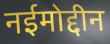
नईमोद्दीन